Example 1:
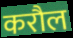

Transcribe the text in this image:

करौल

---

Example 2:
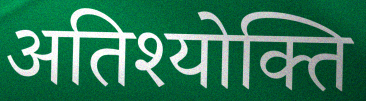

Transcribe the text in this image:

अतिश्योक्ति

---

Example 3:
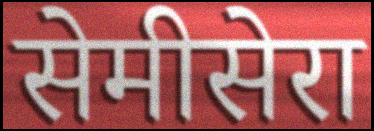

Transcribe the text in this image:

सेमीसेरा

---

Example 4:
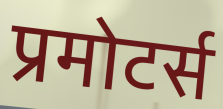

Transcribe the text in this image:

प्रमोटर्स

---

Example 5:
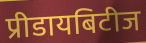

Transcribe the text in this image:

प्रीडायबिटीज